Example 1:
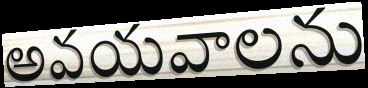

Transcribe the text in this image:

అవయవాలను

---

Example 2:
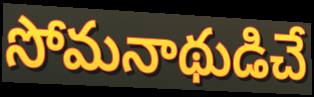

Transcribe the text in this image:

సోమనాథుడిచే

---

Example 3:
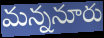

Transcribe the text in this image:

మన్ననూరు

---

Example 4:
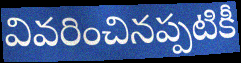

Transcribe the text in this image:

వివరించినప్పటికీ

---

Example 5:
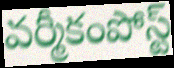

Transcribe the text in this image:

వర్మీకంపోస్ట్